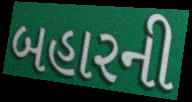
બહારની